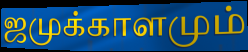
ஜமுக்காளமும்